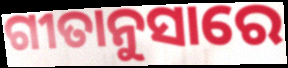
ଗୀତାନୁସାରେ